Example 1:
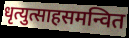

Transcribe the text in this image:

धृत्युत्साहसमन्वित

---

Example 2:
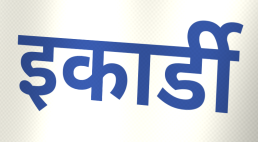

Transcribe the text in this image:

इकार्डी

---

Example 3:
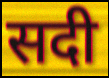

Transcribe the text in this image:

सदी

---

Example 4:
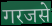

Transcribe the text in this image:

गरजसे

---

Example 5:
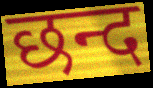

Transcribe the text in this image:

छन्द